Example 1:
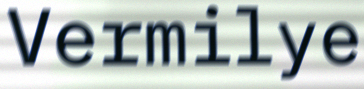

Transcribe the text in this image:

Vermilye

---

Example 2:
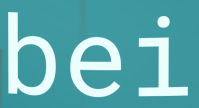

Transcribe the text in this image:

bei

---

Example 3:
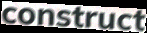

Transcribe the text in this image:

construct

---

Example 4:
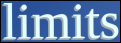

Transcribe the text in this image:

limits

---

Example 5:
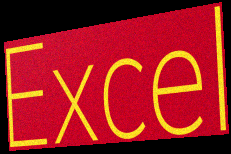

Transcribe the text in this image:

Excel